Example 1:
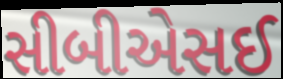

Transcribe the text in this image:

સીબીએસઈ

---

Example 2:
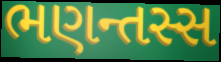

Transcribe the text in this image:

ભણન્તસ્સ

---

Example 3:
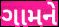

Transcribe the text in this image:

ગામને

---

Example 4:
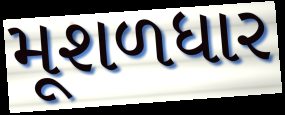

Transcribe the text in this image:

મૂશળધાર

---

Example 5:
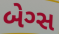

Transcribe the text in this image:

બેગ્સ